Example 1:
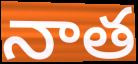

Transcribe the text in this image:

నాత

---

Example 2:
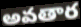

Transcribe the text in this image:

అవతార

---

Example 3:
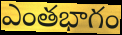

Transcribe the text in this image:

ఎంతభాగం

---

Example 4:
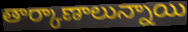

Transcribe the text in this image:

తార్కాణాలున్నాయి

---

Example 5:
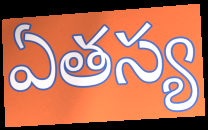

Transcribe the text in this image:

ఏతస్య